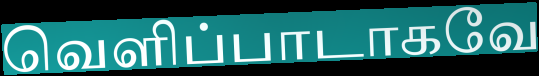
வெளிப்பாடாகவே